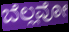
ಬೆಲ್ಲವೋ